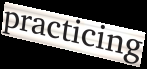
practicing